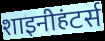
शाइनीहंटर्स